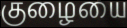
குழையை